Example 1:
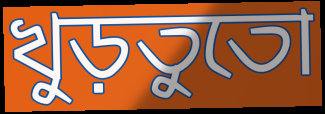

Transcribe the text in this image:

খুড়তুতো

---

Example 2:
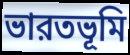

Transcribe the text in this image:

ভারতভূমি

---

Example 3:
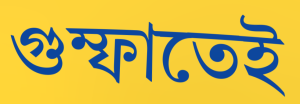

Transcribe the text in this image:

গুম্ফাতেই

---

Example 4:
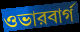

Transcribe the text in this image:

ওভারবার্গ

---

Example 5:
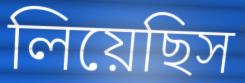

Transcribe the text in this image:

লিয়েছিস